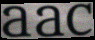
aac